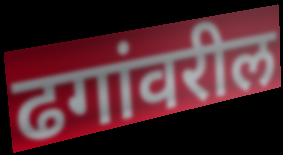
ढगांवरील